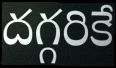
దగ్గరికే